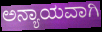
ಅನ್ಯಾಯವಾಗಿ